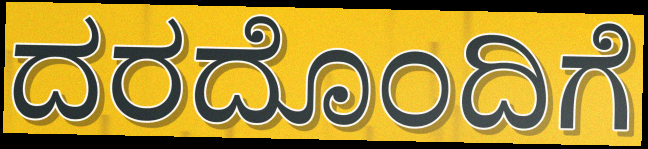
ದರದೊಂದಿಗೆ